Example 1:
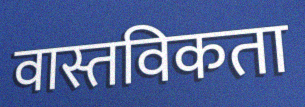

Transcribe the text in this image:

वास्तविकता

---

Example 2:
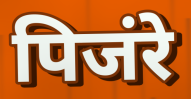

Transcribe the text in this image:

पिजंरे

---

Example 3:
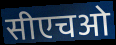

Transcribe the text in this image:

सीएचओ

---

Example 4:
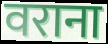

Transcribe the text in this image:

वराना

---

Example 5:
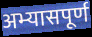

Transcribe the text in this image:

अभ्यासपूर्ण